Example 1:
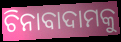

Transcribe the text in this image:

ଚିନାବାଦାମକୁ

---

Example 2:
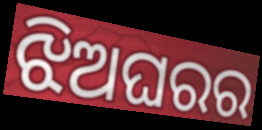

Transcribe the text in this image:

ଝିଅଘରର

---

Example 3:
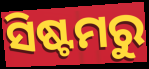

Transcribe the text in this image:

ସିଷ୍ଟମରୁ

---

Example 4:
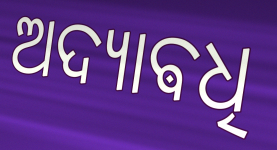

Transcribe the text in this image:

ଅଦ୍ୟାଵଧି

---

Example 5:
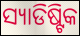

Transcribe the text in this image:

ସ୍ୟାଡିଷ୍ଟିକ